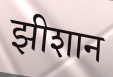
झीशान